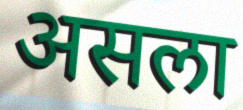
असला